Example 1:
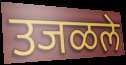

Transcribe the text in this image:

उजळले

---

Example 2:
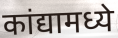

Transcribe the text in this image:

कांद्यामध्ये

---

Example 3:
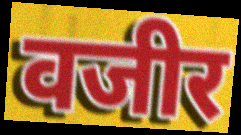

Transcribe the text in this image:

वजीर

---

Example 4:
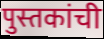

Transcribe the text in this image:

पुस्तकांची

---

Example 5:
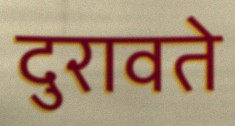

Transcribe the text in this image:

दुरावते